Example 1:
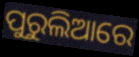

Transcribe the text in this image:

ପୁରୁଲିଆରେ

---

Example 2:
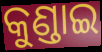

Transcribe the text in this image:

କୁଣ୍ଡାଇ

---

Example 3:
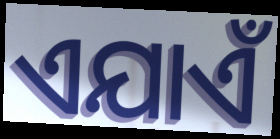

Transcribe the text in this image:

ଏଯାଏଁ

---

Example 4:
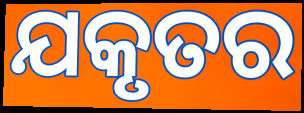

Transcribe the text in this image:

ଯକୃତର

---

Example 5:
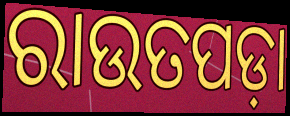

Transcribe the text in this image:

ରାଉତପଡ଼ା